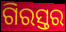
ଗିରସ୍ତର